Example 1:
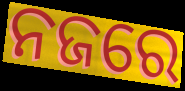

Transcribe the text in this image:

ନଜରେ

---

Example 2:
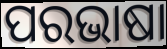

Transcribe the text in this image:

ପରଭାଷା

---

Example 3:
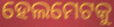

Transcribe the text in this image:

ହେଲମେଟକୁ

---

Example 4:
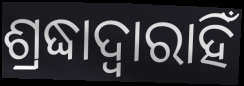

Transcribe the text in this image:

ଶ୍ରଦ୍ଧାଦ୍ୱାରାହିଁ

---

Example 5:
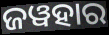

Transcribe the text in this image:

ଜୱହାର